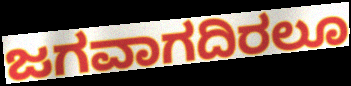
ಜಗವಾಗದಿರಲೂ